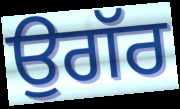
ਉਗੱਰ